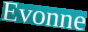
Evonne